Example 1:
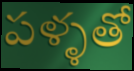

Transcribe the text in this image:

పళ్ళతో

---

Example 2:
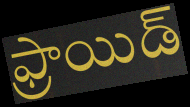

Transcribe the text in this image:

ఫ్రాయిడ్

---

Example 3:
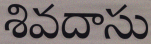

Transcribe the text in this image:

శివదాసు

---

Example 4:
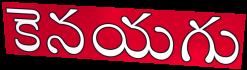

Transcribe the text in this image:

కెనయగు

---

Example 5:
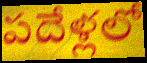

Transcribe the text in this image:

పదేళ్లలో